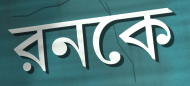
রনকে